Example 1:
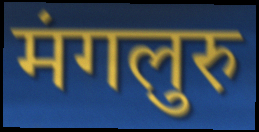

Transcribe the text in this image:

मंगलुरु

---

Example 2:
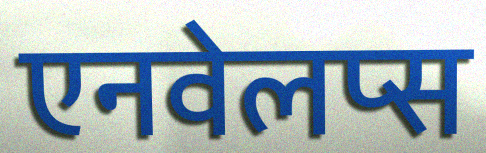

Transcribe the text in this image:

एनवेलप्स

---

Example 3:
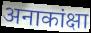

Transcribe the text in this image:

अनाकांक्षा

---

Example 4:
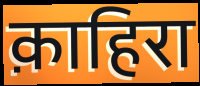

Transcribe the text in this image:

क़ाहिरा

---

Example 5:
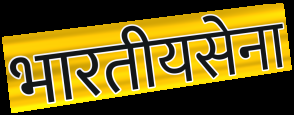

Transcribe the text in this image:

भारतीयसेना